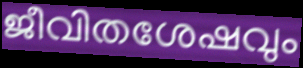
ജീവിതശേഷവും